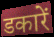
डकारें